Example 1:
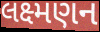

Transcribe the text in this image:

લક્ષ્મણન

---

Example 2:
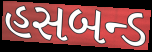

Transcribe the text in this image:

હસબન્ડ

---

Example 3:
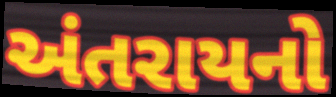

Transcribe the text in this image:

અંતરાયનો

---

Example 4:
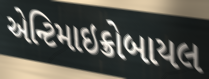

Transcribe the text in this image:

એન્ટિમાઇક્રોબાયલ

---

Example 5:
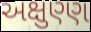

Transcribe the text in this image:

અક્ષુણ્ણ